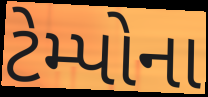
ટેમ્પોના